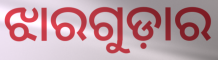
ଝାରଗୁଡ଼ାର